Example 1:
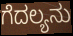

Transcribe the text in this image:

ಗೆದಲ್ಯನು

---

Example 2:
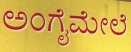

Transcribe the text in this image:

ಅಂಗೈಮೇಲೆ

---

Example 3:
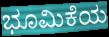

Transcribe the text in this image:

ಭೂಮಿಕೆಯ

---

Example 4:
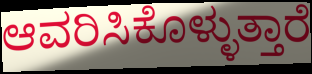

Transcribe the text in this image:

ಆವರಿಸಿಕೊಳ್ಳುತ್ತಾರೆ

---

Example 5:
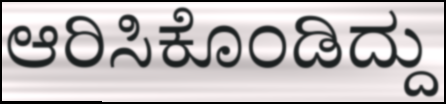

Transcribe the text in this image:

ಆರಿಸಿಕೊಂಡಿದ್ದು